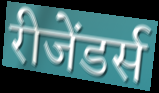
रीजेंडर्स